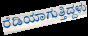
ರೆಡಿಯಾಗುತ್ತಿದ್ದಳು